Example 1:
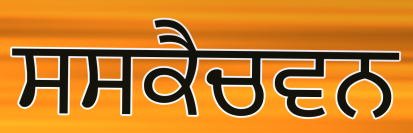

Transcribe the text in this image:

ਸਸਕੈਚਵਨ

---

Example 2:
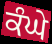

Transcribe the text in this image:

ਕੰਘੇ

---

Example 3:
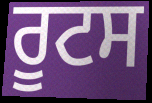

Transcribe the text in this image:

ਰੂਟਸ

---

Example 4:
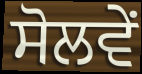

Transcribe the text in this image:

ਸੋਲਵੇਂ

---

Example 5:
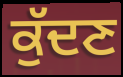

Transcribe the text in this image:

ਕੁੱਦਣ